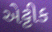
એટ્ટીક